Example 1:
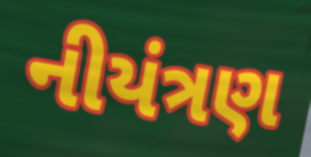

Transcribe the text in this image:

નીયંત્રણ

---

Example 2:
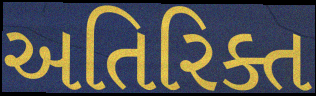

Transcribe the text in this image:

અતિરિક્ત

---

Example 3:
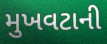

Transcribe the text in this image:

મુખવટાની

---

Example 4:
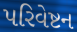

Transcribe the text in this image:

પરિવેષ્ટન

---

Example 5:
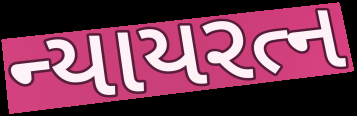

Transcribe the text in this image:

ન્યાયરત્ન